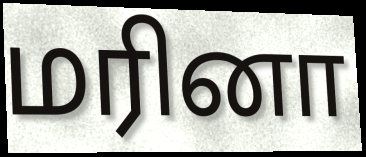
மரினா